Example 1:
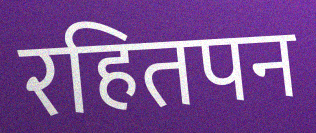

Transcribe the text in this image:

रहितपन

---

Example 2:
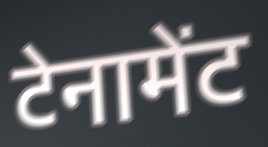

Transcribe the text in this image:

टेनामेंट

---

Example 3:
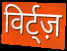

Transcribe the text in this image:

विर्ट्ज़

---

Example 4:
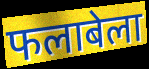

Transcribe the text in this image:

फलाबेला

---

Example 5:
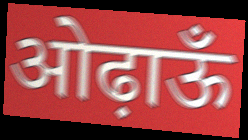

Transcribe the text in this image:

ओढ़ाऊँ